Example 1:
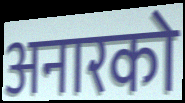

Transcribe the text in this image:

अनारको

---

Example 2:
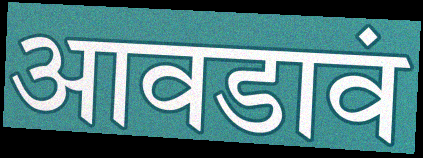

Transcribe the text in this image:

आवडावं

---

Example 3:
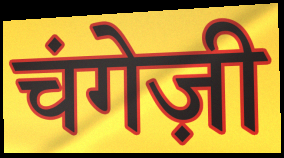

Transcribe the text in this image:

चंगेज़ी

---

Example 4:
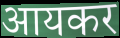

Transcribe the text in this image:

आयकर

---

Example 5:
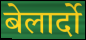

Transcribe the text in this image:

बेलार्दो